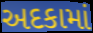
અદકામાં